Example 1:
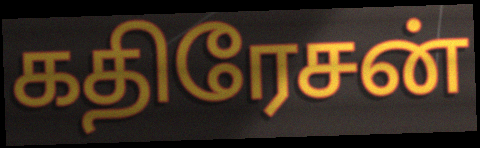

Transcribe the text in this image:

கதிரேசன்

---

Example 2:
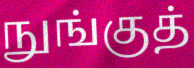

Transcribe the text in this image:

நுங்குத்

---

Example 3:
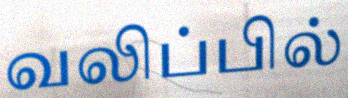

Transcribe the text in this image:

வலிப்பில்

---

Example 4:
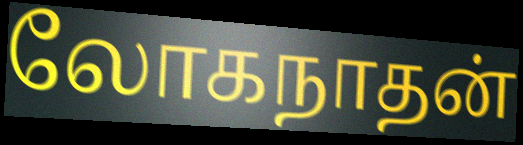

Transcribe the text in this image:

லோகநாதன்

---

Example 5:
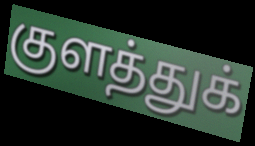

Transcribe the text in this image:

குளத்துக்